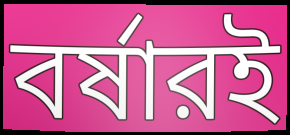
বর্ষারই